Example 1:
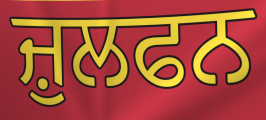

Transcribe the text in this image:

ਜ਼ੁਲਫਨ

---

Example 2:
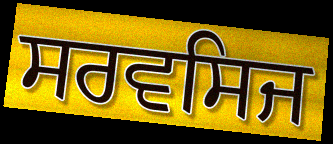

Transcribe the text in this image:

ਸਰਵਸਿਜ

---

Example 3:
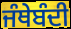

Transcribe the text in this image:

ਜੰਥੇਬੰਦੀ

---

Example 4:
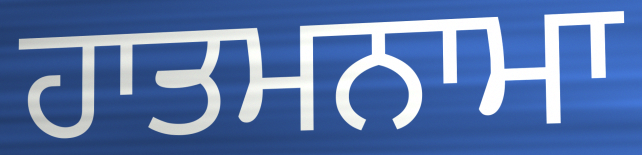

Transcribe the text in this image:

ਹਾਤਮਨਾਮਾ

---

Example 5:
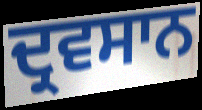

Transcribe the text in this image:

ਦ੍ਰਵਸਾਨ